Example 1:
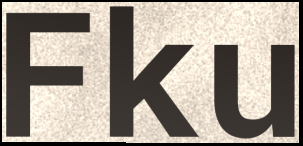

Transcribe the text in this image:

Fku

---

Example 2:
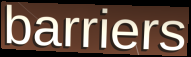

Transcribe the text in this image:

barriers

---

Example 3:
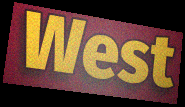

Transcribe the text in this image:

West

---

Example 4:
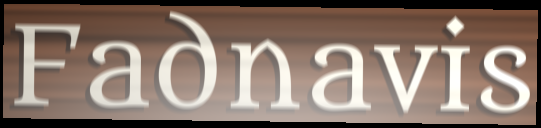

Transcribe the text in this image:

Fadnavis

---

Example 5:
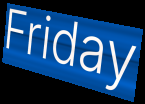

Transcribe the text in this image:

Friday